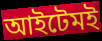
আইটেমই